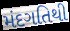
મંદગતિથી